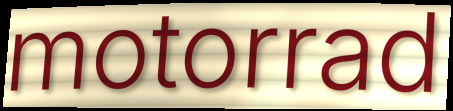
motorrad